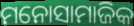
ମନୋସାମାଜିକ